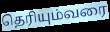
தெரியும்வரை